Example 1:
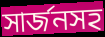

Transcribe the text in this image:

সার্জনসহ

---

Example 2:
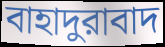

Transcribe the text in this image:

বাহাদুরাবাদ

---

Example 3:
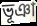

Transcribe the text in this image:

ভূঞা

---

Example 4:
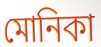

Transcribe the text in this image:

মোনিকা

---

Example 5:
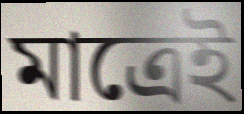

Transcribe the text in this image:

মাত্রেই